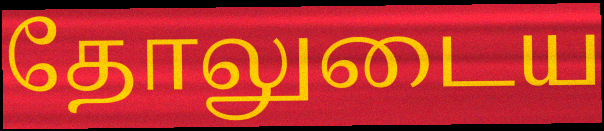
தோலுடைய